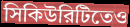
সিকিউরিটিতেও